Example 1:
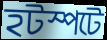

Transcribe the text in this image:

হটস্পটে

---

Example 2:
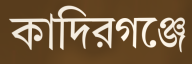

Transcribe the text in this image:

কাদিরগঞ্জে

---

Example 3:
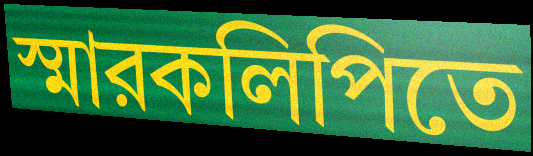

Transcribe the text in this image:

স্মারকলিপিতে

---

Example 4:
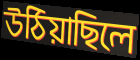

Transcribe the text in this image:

উঠিয়াছিলে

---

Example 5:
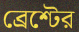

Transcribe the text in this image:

ব্রেশ্টের